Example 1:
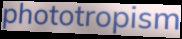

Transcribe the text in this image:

phototropism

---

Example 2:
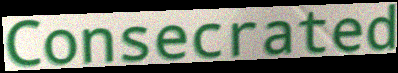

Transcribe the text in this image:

Consecrated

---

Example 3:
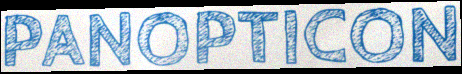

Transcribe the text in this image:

PANOPTICON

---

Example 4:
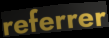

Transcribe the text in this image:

referrer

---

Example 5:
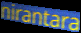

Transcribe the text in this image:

nirantara